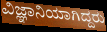
ವಿಜ್ಞಾನಿಯಾಗಿದ್ದರು